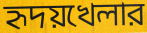
হৃদয়খেলার